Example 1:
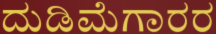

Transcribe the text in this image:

ದುಡಿಮೆಗಾರರ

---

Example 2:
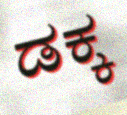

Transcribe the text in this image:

ಡಕ್ಕ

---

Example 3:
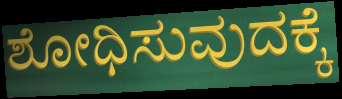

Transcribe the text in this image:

ಶೋಧಿಸುವುದಕ್ಕೆ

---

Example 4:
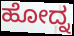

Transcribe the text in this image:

ಹೋದ್ನ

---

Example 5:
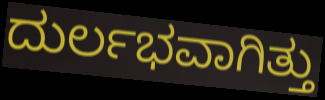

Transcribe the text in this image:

ದುರ್ಲಭವಾಗಿತ್ತು